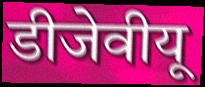
डीजेवीयू